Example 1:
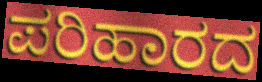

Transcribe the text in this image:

ಪರಿಹಾರದ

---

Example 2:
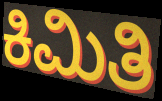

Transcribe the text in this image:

ಕಿಮಿತಿ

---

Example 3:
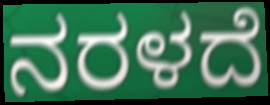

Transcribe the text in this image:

ನರಳದೆ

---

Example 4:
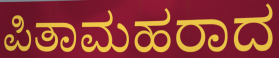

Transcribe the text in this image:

ಪಿತಾಮಹರಾದ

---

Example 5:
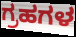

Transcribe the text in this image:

ಗ್ರಹಗಳ